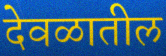
देवळातील